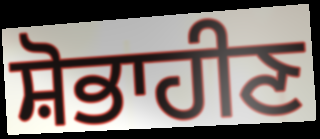
ਸ਼ੋਭਾਹੀਣ